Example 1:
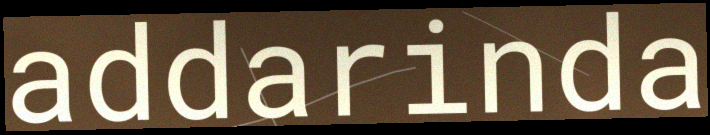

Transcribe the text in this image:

addarinda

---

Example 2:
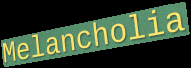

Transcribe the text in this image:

Melancholia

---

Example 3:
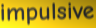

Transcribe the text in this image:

impulsive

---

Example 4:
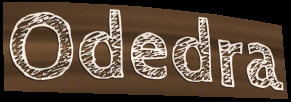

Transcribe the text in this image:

Odedra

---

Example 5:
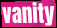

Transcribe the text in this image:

vanity